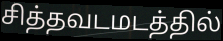
சித்தவடமடத்தில்